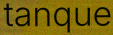
tanque